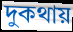
দুকথায়